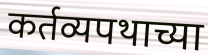
कर्तव्यपथाच्या